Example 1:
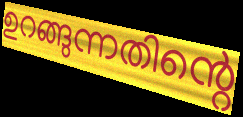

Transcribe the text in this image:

ഉറങ്ങുന്നതിന്റെ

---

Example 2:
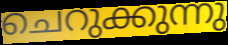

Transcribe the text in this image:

ചെറുക്കുന്നു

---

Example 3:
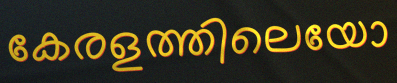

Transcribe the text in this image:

കേരളത്തിലെയോ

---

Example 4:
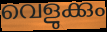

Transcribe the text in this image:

വെളുക്കും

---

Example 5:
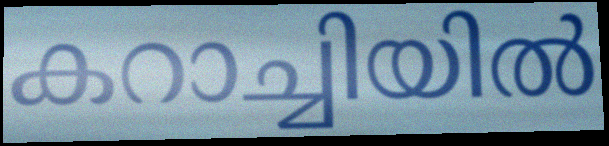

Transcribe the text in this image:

കറാച്ചിയിൽ